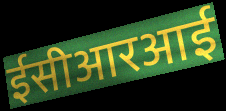
ईसीआरआई